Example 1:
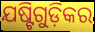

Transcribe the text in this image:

ଯଷ୍ଟିଗୁଡ଼ିକର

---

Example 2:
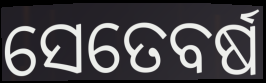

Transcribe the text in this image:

ସେତେବର୍ଷ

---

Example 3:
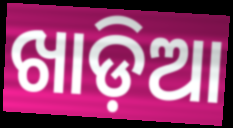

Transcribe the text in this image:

ଖାଡ଼ିଆ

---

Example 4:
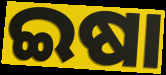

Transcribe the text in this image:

ଇଷା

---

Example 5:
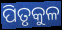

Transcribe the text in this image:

ପିତୃକୁଳ